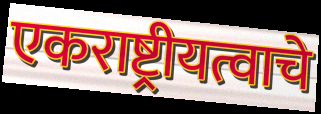
एकराष्ट्रीयत्वाचे